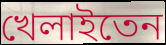
খেলাইতেন